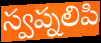
స్వప్నలిపి